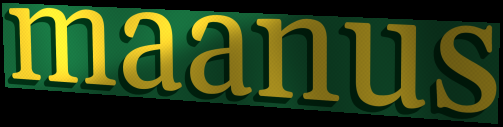
maanus